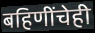
बहिणींचेही